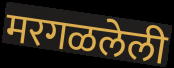
मरगळलेली